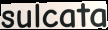
sulcata